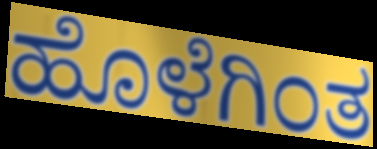
ಹೊಳೆಗಿಂತ